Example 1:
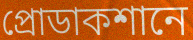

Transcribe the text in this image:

প্রোডাকশানে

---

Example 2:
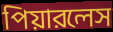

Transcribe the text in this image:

পিয়ারলেস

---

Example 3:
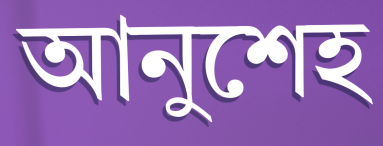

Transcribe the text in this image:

আনুশেহ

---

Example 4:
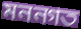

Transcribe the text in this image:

মননগত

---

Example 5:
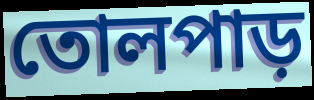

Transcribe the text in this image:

তোলপাড়